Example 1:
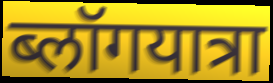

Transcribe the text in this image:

ब्लॉगयात्रा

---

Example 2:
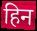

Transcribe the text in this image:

हिन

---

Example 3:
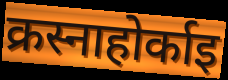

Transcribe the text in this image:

क्रस्नाहोर्काइ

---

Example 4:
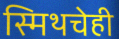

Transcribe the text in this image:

स्मिथचेही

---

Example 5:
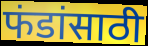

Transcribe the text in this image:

फंडांसाठी